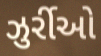
ઝુર્રીઓ